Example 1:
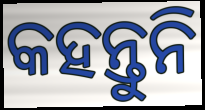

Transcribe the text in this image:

କହନ୍ତୁନି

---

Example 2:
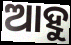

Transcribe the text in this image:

ଆହୁ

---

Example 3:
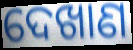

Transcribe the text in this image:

ଦେଖାଣ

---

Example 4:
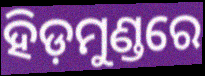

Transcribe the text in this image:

ହିଡ଼ମୁଣ୍ଡରେ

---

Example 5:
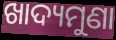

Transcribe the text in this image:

ଖାଦ୍ୟମୁଣା